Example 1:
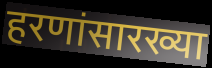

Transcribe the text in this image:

हरणांसारख्या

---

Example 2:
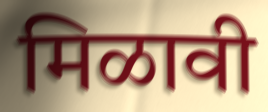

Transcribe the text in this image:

मिळावी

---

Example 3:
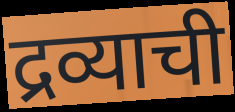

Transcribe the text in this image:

द्रव्याची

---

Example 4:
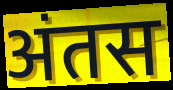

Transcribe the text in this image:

अंतस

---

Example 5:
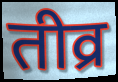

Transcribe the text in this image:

तीव्र